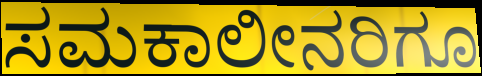
ಸಮಕಾಲೀನರಿಗೂ